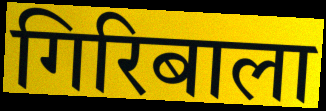
गिरिबाला